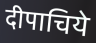
दीपाचिये